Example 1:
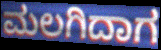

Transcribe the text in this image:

ಮಲಗಿದಾಗ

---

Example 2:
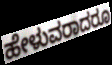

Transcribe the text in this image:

ಹೇಳುವರಾದರೂ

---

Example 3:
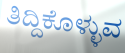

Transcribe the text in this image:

ತಿದ್ದಿಕೊಳ್ಳುವ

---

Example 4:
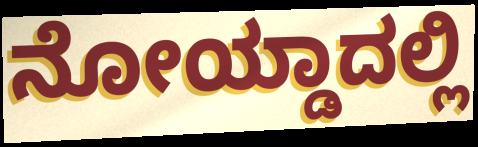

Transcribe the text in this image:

ನೋಯ್ಡಾದಲ್ಲಿ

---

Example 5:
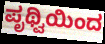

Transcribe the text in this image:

ಪೃಥ್ವಿಯಿಂದ